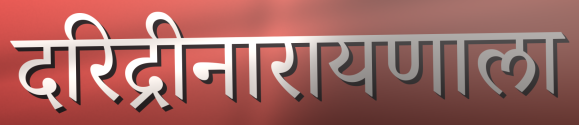
दरिद्रीनारायणाला